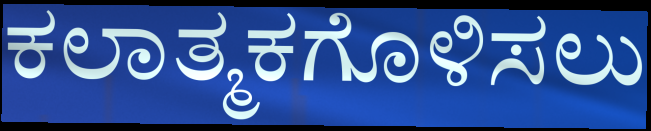
ಕಲಾತ್ಮಕಗೊಳಿಸಲು